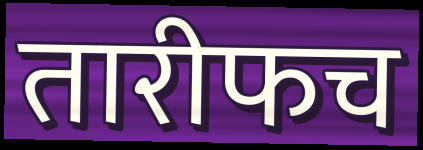
तारीफच